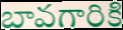
బావగారికి